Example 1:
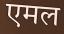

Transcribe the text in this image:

एमल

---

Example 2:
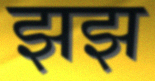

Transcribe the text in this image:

झझ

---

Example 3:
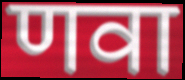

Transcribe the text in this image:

णवा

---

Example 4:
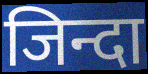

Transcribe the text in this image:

जिन्‍दा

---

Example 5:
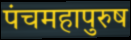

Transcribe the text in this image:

पंचमहापुरुष